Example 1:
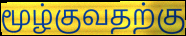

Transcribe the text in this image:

மூழ்குவதற்கு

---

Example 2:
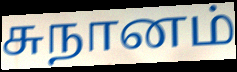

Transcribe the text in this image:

சுநானம்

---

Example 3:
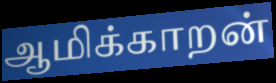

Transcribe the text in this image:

ஆமிக்காறன்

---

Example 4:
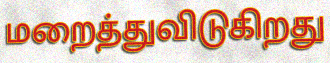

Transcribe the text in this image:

மறைத்துவிடுகிறது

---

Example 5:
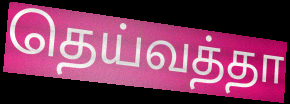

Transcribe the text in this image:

தெய்வத்தா